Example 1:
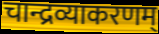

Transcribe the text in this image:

चान्द्रव्याकरणम्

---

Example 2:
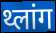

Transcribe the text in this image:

थ्लांग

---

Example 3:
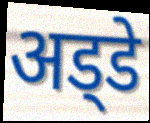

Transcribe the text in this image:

अड्‍डे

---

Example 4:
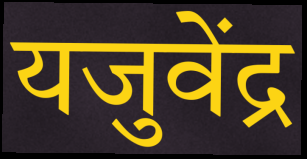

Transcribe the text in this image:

यजुवेंद्र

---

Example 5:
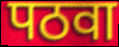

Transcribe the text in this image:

पठवा